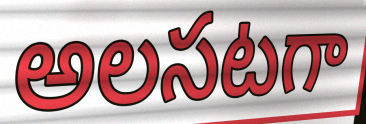
అలసటగా